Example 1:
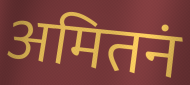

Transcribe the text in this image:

अमितनं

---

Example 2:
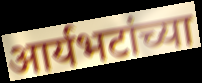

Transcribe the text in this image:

आर्यभटांच्या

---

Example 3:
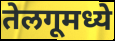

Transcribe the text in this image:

तेलगूमध्ये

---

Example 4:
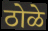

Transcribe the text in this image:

ठोळे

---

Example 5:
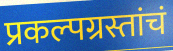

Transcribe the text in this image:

प्रकल्पग्रस्तांचं